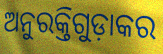
ଅନୁରକ୍ତିଗୁଡ଼ାକର